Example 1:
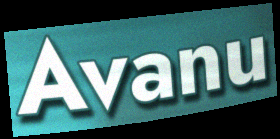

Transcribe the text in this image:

Avanu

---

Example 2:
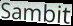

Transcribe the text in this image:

Sambit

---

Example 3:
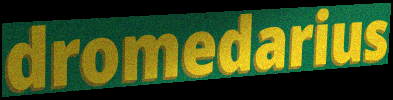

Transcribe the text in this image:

dromedarius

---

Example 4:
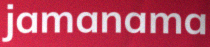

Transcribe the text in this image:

jamanama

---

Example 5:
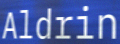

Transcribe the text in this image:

Aldrin